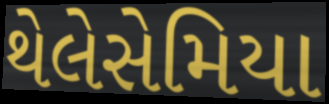
થેલેસેમિયા